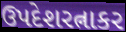
ઉપદેશરત્નાકર